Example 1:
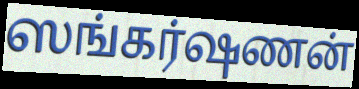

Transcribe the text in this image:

ஸங்கர்ஷணன்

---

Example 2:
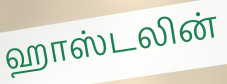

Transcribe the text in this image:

ஹாஸ்டலின்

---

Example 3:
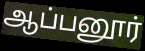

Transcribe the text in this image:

ஆப்பனூர்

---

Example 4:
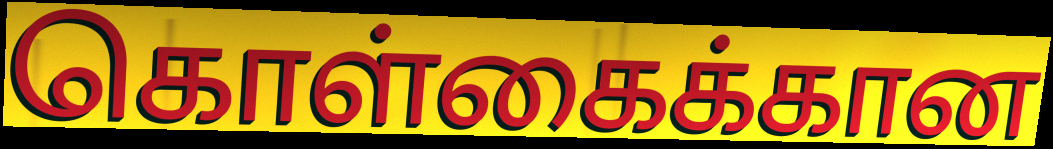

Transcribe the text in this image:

கொள்கைக்கான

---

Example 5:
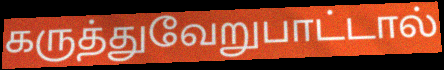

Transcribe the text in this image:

கருத்துவேறுபாட்டால்